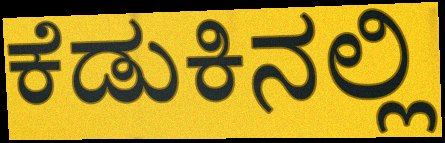
ಕೆಡುಕಿನಲ್ಲಿ